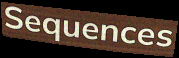
Sequences